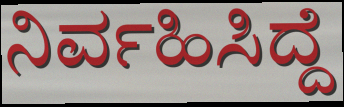
ನಿರ್ವಹಿಸಿದ್ದೆ